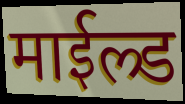
माईल्ड